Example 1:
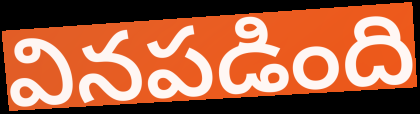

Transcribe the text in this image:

వినపడింది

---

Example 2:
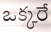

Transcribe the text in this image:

ఒక్కరే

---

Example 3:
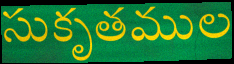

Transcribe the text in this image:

సుకృతముల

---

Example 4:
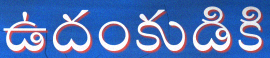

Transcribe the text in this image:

ఉదంకుడికి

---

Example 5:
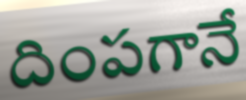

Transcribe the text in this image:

దింపగానే